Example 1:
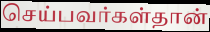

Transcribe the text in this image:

செய்பவர்கள்தான்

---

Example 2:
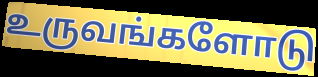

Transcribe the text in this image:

உருவங்களோடு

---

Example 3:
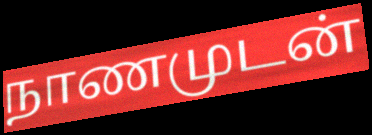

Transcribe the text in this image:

நாணமுடன்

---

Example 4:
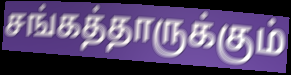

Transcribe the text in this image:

சங்கத்தாருக்கும்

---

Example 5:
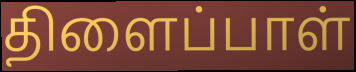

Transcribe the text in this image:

திளைப்பாள்